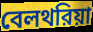
বেলথরিয়া